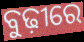
ବୁଢ଼ୀରେ